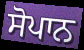
ਸੋਪਾਨ